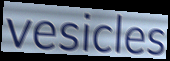
vesicles